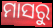
ମାସରୁ